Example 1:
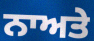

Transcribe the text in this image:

ਨਾਅਤੇ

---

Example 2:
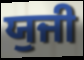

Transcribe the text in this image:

ਯੁਜੀ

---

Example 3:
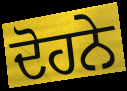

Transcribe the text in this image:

ਦੋਹਨੇ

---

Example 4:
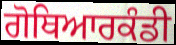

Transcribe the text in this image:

ਗੋਥਿਆਰਕੰਡੀ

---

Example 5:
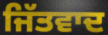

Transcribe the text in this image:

ਜਿੱਤਵਾਦ